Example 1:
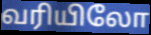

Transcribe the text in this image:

வரியிலோ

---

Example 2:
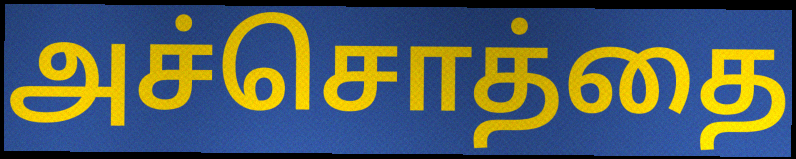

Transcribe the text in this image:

அச்சொத்தை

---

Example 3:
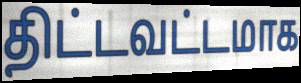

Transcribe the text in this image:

திட்டவட்டமாக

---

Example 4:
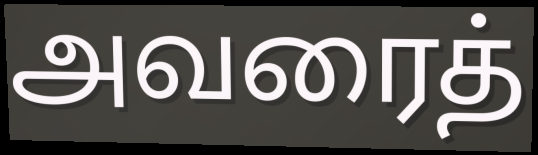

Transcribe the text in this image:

அவரைத்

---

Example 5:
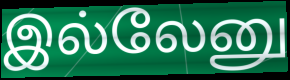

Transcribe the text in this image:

இல்லேனு